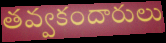
తవ్వకందారులు